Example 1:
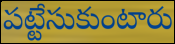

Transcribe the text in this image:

పట్టేసుకుంటారు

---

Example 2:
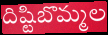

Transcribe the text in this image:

దిష్టిబొమ్మల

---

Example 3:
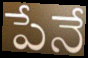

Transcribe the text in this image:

పేనే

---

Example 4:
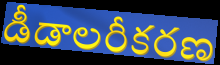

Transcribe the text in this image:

డీడాలరీకరణ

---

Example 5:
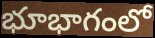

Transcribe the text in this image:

భూభాగంలో